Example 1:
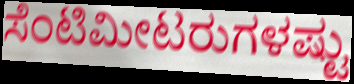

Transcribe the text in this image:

ಸೆಂಟಿಮೀಟರುಗಳಷ್ಟು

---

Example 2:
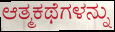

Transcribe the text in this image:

ಆತ್ಮಕಥೆಗಳನ್ನು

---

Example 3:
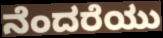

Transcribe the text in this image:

ನೆಂದರೆಯು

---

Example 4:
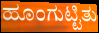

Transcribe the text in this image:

ಹೂಂಗುಟ್ಟಿತು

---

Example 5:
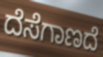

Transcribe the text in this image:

ದೆಸೆಗಾಣದೆ